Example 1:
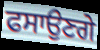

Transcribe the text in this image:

ਫਸਾਉਣਗੇ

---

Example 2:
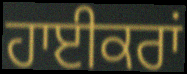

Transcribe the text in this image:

ਹਾਈਕਰਾਂ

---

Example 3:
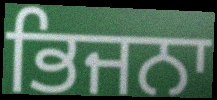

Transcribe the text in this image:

ਭਿਜਨਾ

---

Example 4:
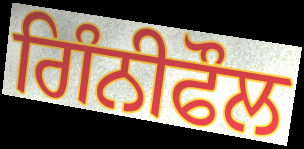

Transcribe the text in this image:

ਗਿੰਨੀਫੌਲ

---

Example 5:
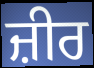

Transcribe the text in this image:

ਜ਼ੀਰ